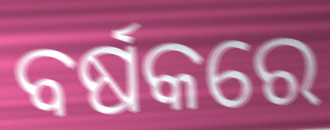
ବର୍ଷକରେ